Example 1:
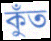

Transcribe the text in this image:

কুঁত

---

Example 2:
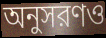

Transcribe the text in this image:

অনুসরণও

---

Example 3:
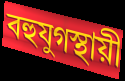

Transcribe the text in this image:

বহুযুগস্থায়ী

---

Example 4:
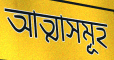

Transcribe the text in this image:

আত্মাসমূহ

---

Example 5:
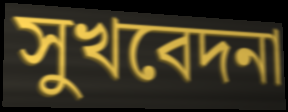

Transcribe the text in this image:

সুখবেদনা